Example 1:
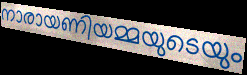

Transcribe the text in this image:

നാരായണിയമ്മയുടെയും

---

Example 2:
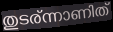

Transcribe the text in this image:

തുടര്ന്നാണിത്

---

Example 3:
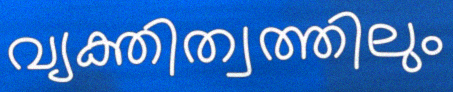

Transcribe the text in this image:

വ്യക്തിത്വത്തിലും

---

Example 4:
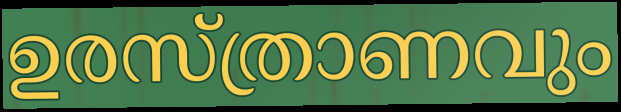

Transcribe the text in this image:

ഉരസ്ത്രാണവും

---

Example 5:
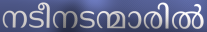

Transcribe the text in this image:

നടീനടന്മാരിൽ